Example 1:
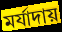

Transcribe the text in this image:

মর্যাদায়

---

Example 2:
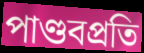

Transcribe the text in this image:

পাণ্ডবপ্রতি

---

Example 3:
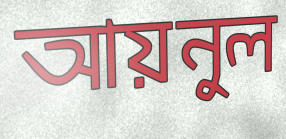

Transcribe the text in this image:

আয়নুল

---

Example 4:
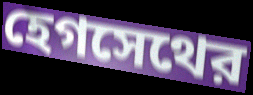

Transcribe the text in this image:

হেগসেথের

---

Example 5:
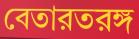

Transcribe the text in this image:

বেতারতরঙ্গ